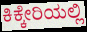
ಕಿಕ್ಕೇರಿಯಲ್ಲಿ